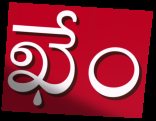
ఖేం